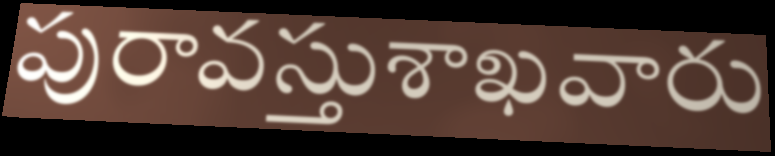
పురావస్తుశాఖవారు